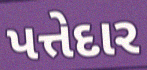
પત્તેદાર